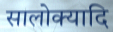
सालोक्यादि